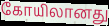
கோயிலானது